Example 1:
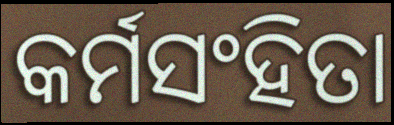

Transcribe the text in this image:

କର୍ମସଂହିତା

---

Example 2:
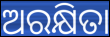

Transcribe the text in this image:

ଅରକ୍ଷିତା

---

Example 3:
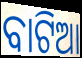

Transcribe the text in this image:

ବାଟିଆ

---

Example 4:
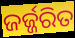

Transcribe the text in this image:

ଜର୍ଜ୍ଜରିତ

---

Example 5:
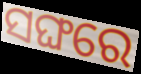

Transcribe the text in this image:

ସଙ୍ଘରେ